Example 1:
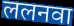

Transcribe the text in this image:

ललनवा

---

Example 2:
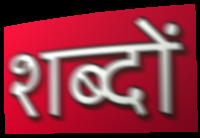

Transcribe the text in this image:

शब्दों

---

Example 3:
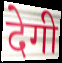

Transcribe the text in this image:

देगी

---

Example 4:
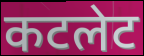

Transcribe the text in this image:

कटलेट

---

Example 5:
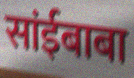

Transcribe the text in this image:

सांईबाबा